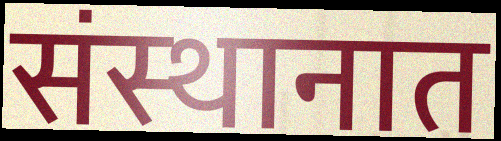
संस्थानात